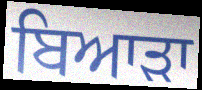
ਬਿਆੜਾ